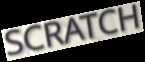
SCRATCH